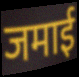
जमाई